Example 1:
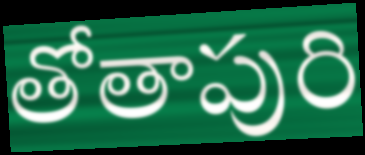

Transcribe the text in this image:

తోతాపురి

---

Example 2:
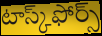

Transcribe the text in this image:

టాస్క్‌ఫోర్స్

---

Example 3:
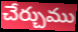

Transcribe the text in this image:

చేర్చుము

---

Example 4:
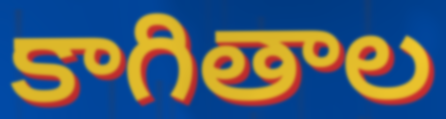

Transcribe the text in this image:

కాగితాల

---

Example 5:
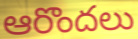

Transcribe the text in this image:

ఆరొందలు